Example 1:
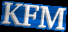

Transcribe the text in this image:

KFM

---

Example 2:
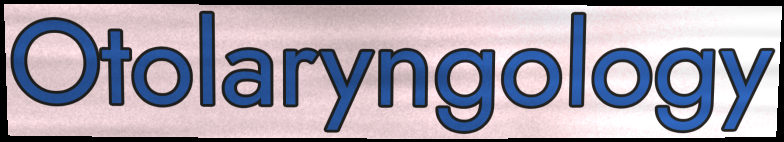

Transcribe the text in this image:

Otolaryngology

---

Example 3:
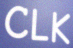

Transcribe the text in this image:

CLK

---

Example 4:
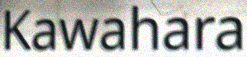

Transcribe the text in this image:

Kawahara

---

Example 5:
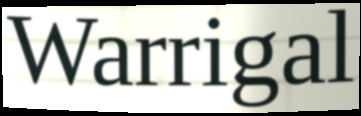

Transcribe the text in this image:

Warrigal